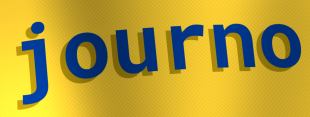
journo